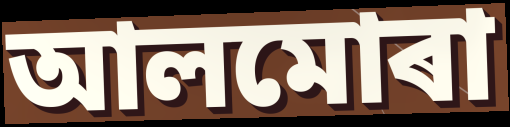
আলমোৰা